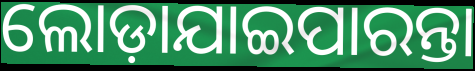
ଲୋଡ଼ାଯାଇପାରନ୍ତା